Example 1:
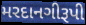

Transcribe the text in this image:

મરદાનગીરૂપી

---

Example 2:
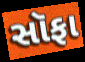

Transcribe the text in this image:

સૉફા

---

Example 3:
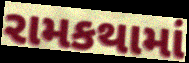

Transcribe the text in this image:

રામકથામાં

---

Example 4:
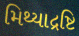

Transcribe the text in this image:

મિથ્યાદ્રષ્ટિ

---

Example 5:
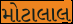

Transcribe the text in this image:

મોટાલાલ